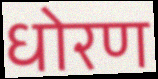
धोरण